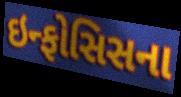
ઇન્ફોસિસના